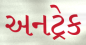
અનટ્રેક